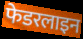
फेडरलाइन